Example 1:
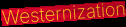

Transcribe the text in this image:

Westernization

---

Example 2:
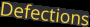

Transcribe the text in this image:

Defections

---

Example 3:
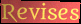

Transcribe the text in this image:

Revises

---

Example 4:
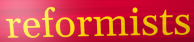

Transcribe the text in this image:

reformists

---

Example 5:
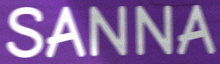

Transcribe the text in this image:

SANNA